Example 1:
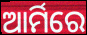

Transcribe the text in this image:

ଆର୍ମିରେ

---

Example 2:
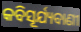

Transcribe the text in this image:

କବିସୂର୍ଯ୍ୟବାଣୀ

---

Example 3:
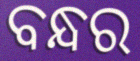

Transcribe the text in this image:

ବନ୍ଧର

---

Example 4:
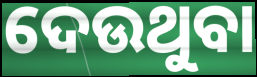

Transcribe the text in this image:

ଦେଉଥୁବା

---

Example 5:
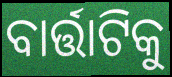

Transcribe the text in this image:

ବାର୍ତ୍ତାଟିକୁ